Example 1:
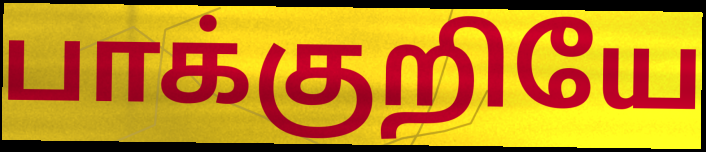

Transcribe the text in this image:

பாக்குறியே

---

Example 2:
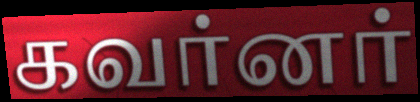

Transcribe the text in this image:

கவர்னர்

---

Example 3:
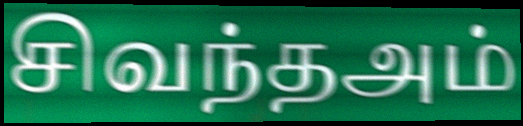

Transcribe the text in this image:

சிவந்தஅம்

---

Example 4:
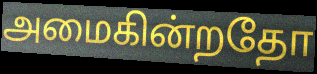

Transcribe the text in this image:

அமைகின்றதோ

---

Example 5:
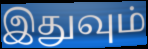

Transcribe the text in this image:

இதுவும்